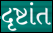
દૃષ્ટાંત